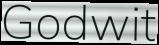
Godwit